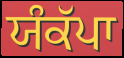
ਯੰਕੱਪਾ